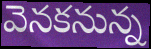
వెనకనున్న